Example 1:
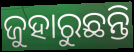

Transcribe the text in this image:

ଜୁହାରୁଛନ୍ତି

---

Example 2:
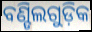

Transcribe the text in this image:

ବଣ୍ଡିଲଗୁଡ଼ିକ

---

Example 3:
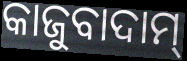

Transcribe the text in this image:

କାଜୁବାଦାମ୍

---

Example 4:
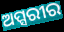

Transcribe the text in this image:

ଅପ୍ସରୀର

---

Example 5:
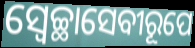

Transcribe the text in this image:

ସ୍ଵେଚ୍ଛାସେବୀରୂପେ